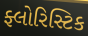
ફ્લોરિસ્ટિક